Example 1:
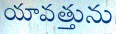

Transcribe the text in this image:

యావత్తును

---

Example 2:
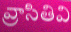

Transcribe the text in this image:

వ్రాసితివి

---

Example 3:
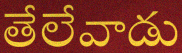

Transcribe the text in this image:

తేలేవాడు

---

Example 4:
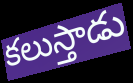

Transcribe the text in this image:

కలుస్తాడు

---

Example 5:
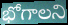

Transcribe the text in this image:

భోగాలని